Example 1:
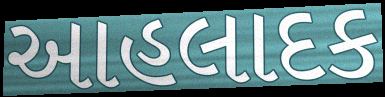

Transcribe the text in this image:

આહલાદક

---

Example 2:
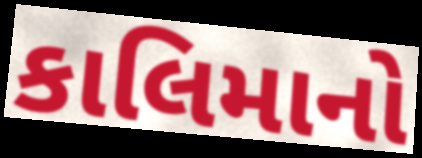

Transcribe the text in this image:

કાલિમાનો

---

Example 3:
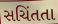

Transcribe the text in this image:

સચિંતતા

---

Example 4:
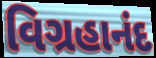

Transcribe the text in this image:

વિગ્રહાનંદ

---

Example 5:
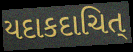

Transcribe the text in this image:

યદાકદાચિત્